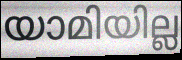
യാമിയില്ല